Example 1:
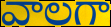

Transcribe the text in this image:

వాలగా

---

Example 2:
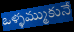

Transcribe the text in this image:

ఒళ్ళమ్ముకునే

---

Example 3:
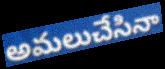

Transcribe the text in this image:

అమలుచేసినా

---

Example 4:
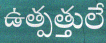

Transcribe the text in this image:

ఉత్పత్తులే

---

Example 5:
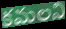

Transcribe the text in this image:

కమలని